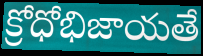
క్రోధోభిజాయతే